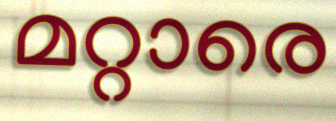
മറ്റാരെ